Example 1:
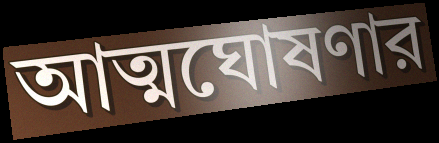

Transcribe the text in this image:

আত্মঘোষণার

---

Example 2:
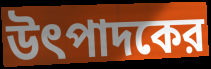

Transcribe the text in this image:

উৎপাদকের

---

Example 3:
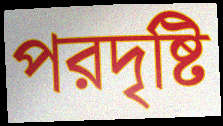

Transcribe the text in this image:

পরদৃষ্টি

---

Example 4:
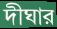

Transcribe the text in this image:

দীঘার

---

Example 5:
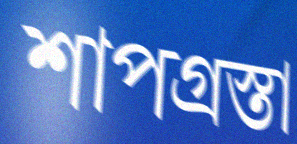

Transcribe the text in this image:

শাপগ্রস্তা